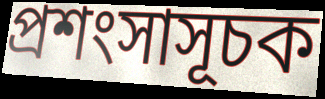
প্রশংসাসূচক